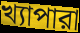
খ্যাপারা